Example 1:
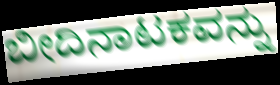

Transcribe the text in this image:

ಬೀದಿನಾಟಕವನ್ನು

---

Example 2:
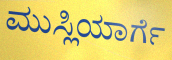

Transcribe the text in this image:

ಮುಸ್ಲಿಯಾರ್ಗೆ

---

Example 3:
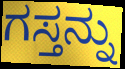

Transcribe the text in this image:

ಗಸ್ತನ್ನು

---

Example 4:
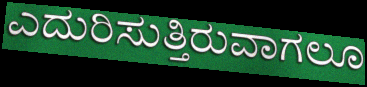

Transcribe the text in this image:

ಎದುರಿಸುತ್ತಿರುವಾಗಲೂ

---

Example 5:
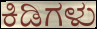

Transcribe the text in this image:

ಕಿಡಿಗಳು